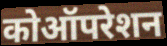
कोऑपरेशन